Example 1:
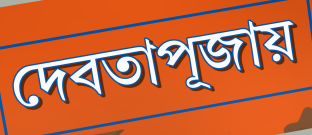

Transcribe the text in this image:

দেবতাপূজায়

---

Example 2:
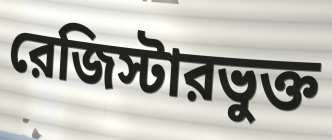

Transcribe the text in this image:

রেজিস্টারভুক্ত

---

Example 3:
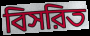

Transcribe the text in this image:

বিসরিত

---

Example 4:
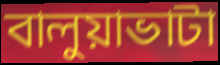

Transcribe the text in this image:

বালুয়াভাটা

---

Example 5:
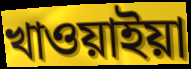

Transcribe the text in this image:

খাওয়াইয়া